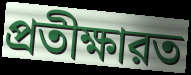
প্রতীক্ষারত